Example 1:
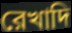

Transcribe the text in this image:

রেখাদি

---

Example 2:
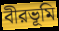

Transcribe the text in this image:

বীরভূমি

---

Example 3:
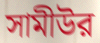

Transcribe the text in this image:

সামীউর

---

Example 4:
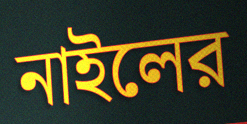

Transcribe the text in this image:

নাইলের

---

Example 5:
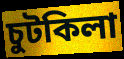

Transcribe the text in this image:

চুটকিলা